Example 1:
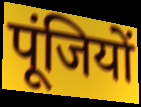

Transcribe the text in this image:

पूंजियों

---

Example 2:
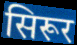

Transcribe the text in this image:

सिरूर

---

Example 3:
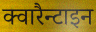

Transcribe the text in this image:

क्वारैन्टाइन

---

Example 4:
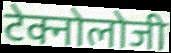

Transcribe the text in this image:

टेक्नोलोजी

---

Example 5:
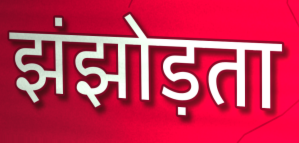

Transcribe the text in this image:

झंझोड़ता